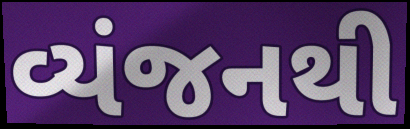
વ્યંજનથી